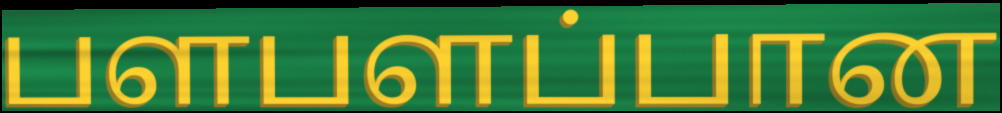
பளபளப்பான